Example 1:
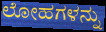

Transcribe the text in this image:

ಲೋಹಗಳನ್ನು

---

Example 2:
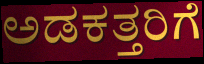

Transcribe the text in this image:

ಅಡಕತ್ತರಿಗೆ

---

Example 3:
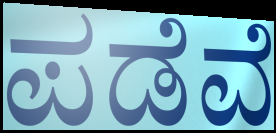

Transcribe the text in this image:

ಪಡೆವೆ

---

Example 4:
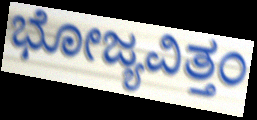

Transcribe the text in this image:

ಭೋಜ್ಯವಿತ್ತಂ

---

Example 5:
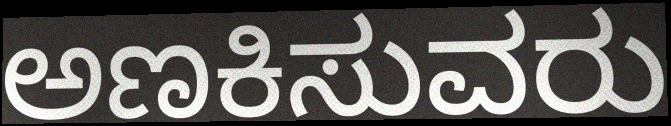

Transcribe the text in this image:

ಅಣಕಿಸುವರು